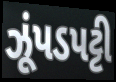
ઝૂંપડપટ્ટી